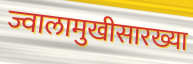
ज्वालामुखीसारख्या